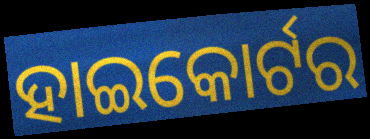
ହାଇକୋର୍ଟର